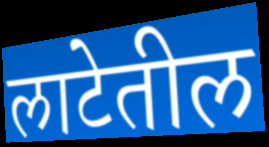
लाटेतील